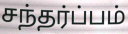
சந்தர்ப்பம்